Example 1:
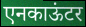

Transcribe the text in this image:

एनकाऊंटर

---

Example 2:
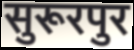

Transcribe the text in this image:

सुरूरपुर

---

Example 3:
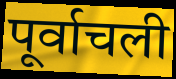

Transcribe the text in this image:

पूर्वाचली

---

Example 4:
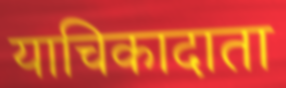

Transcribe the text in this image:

याचिकादाता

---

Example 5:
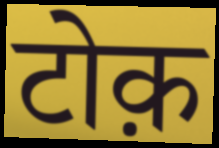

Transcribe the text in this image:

टोक़